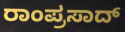
ರಾಂಪ್ರಸಾದ್